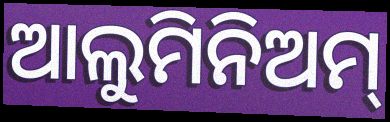
ଆଲୁମିନିଅମ୍